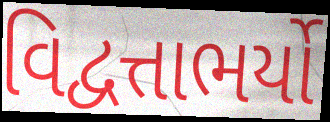
વિદ્વત્તાભર્યો